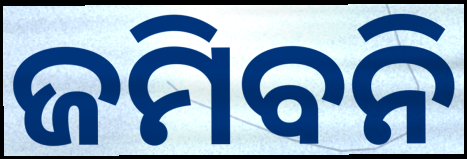
ଜମିବନି